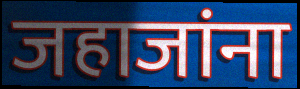
जहाजांना